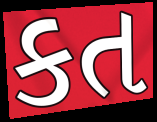
કત